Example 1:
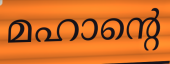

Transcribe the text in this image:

മഹാന്റെ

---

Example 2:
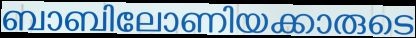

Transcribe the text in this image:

ബാബിലോണിയക്കാരുടെ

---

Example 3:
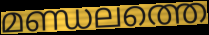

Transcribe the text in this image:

മണ്ഡലത്തെ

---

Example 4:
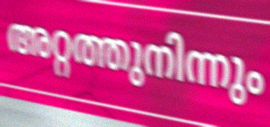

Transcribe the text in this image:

അറ്റത്തുനിന്നും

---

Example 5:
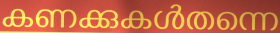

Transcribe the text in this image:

കണക്കുകൾതന്നെ